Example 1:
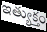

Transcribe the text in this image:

ఇత్యుక్తం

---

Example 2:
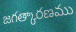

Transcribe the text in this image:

జగత్కారణము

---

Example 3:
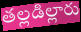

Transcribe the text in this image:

తల్లడిల్లారు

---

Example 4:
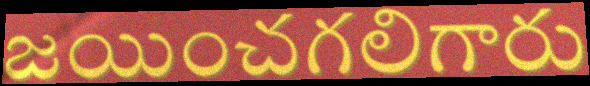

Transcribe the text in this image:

జయించగలిగారు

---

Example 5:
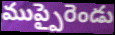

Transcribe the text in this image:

ముప్పైరెండు